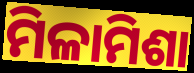
ମିଳାମିଶା